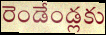
రెండేండ్లకు